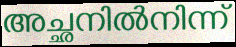
അച്ഛനിൽനിന്ന്